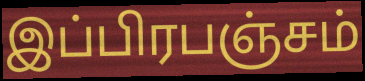
இப்பிரபஞ்சம்